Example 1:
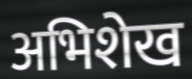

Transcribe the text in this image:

अभिशेख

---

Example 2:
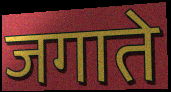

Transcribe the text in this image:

जगाते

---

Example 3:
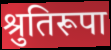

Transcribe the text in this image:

श्रुतिरूपा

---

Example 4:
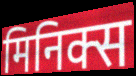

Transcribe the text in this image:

मिनिक्स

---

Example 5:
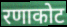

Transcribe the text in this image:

रणाकोट